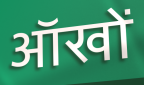
ऑखों